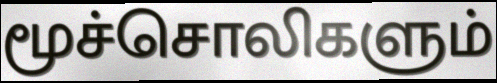
மூச்சொலிகளும்